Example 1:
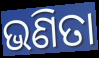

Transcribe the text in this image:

ଭଣିତା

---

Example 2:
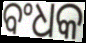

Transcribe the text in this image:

ବଂଧକ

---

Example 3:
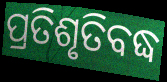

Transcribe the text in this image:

ପ୍ରତିଶୃତିବଦ୍ଧ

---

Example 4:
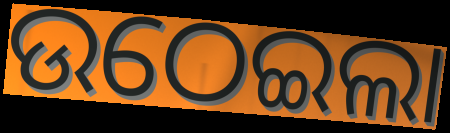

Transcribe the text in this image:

ଉଠେଇଲା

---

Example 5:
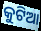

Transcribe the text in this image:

କୁଟିଆ